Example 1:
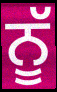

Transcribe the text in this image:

ਨੂੱ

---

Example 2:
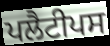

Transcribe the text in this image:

ਪਲੈਟੀਪਸ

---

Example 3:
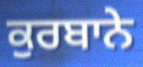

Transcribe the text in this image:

ਕੁਰਬਾਨੇ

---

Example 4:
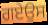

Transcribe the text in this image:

ਗਏਉਸ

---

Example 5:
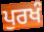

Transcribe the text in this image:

ਪੁਰਖੰ